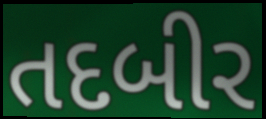
તદબીર